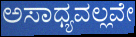
ಅಸಾಧ್ಯವಲ್ಲವೇ